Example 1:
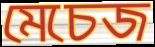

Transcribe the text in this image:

মেচেজ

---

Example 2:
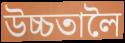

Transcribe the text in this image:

উচ্চতালৈ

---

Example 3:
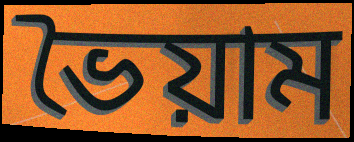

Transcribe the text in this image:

ভৈয়াম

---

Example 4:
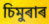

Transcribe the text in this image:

চিমুৰাৰ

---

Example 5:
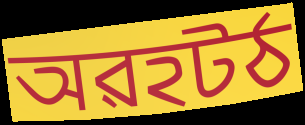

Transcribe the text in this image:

অৱহটঠ